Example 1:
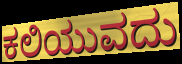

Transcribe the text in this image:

ಕಲಿಯುವದು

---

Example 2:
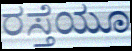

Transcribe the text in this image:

ರಸ್ತೆಯೂ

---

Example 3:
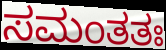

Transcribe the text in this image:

ಸಮಂತತಃ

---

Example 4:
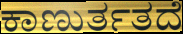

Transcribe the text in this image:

ಕಾಣುರ್ತತದೆ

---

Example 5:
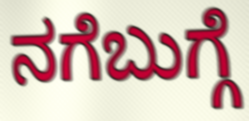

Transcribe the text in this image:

ನಗೆಬುಗ್ಗೆ